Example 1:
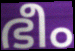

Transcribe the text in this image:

ഭീം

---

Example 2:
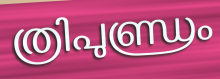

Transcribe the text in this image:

ത്രിപുണ്ഡ്രം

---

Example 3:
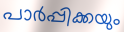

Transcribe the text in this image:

പാർപ്പിക്കയും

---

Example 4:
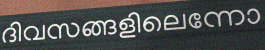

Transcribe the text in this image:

ദിവസങ്ങളിലെന്നോ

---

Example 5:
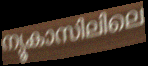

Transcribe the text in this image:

ന്യൂകാസിലിലെ